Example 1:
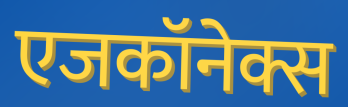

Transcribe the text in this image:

एजकॉनेक्स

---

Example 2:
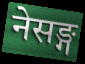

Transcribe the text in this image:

नेसङ्ग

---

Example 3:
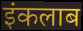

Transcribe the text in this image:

इंकलाब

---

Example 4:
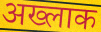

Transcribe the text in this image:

अख्लाक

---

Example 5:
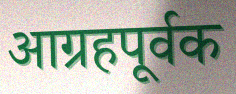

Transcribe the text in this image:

आग्रहपूर्वक